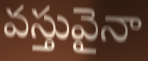
వస్తువైనా